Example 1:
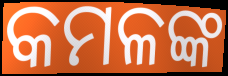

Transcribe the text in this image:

କମଳଙ୍କ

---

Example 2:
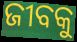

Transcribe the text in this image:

ଜୀବକୁ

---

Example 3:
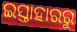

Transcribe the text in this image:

ଇସ୍ତାହାରରୁ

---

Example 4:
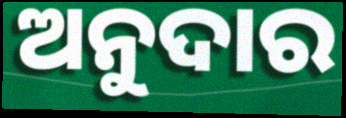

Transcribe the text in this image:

ଅନୁଦାର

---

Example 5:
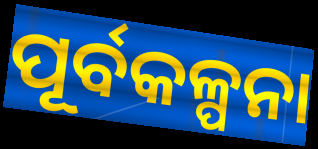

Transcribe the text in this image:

ପୂର୍ବକଳ୍ପନା